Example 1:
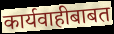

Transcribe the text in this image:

कार्यवाहीबाबत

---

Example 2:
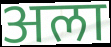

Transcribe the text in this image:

अला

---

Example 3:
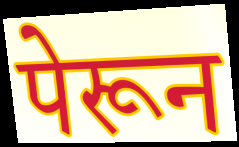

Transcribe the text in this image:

पेरून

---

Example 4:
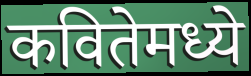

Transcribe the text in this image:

कवितेमध्ये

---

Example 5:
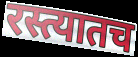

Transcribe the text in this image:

रस्त्यातच